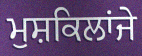
ਮੁਸ਼ਕਿਲਾਂਜੇ